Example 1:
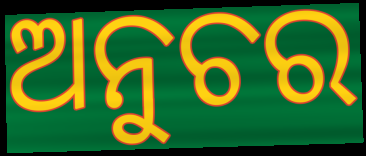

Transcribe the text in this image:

ଅନୁଚର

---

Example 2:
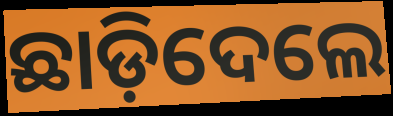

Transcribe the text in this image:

ଛାଡ଼ିଦେଲେ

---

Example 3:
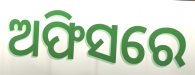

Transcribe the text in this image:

ଅଫିସରେ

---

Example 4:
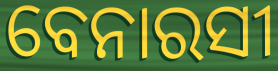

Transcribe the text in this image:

ବେନାରସୀ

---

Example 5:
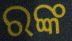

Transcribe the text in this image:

ରଙ୍କ